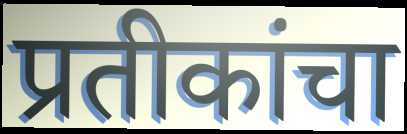
प्रतीकांचा